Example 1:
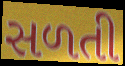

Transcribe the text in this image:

સળતી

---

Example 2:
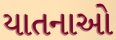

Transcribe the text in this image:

યાતનાઓ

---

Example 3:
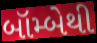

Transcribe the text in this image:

બૉમ્બેથી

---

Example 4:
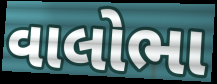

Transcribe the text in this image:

વાલોભા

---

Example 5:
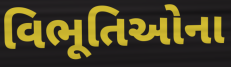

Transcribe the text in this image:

વિભૂતિઓના